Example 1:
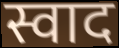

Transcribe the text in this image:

स्वाद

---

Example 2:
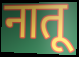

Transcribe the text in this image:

नातू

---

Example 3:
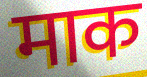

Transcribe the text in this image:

माक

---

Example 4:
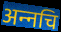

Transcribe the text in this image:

अन्नचि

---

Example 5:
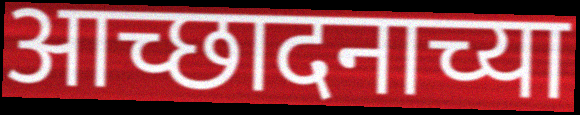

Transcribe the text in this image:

आच्छादनाच्या